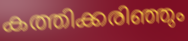
കത്തിക്കരിഞ്ഞും